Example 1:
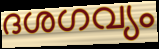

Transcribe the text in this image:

ദശഗവ്യം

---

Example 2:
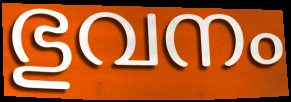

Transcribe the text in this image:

ഭുവനം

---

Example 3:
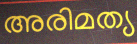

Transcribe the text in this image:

അരിമത്യ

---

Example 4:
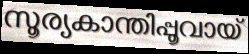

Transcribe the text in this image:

സൂര്യകാന്തിപ്പൂവായ്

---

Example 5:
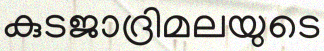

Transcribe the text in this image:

കുടജാദ്രിമലയുടെ